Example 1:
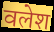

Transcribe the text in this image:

वलेश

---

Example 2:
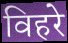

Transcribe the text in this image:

विहरे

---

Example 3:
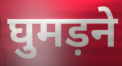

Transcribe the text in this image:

घुमड़ने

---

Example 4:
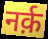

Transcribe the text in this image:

नर्क़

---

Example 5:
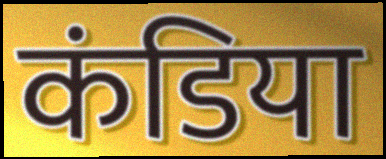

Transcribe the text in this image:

कंडिया